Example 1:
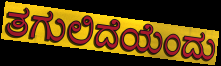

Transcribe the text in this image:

ತಗುಲಿದೆಯೆಂದು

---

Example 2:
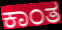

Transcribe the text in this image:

ಕಾಂತ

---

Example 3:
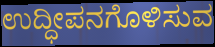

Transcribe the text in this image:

ಉದ್ಧೀಪನಗೊಳಿಸುವ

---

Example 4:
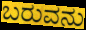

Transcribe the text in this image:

ಬರುವನು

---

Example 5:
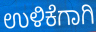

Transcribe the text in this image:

ಉಳಿಕೆಗಾಗಿ